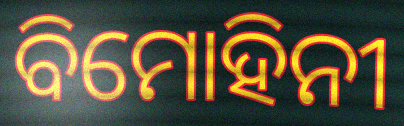
ବିମୋହିନୀ